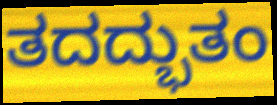
ತದದ್ಭುತಂ